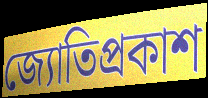
জ্যোতিপ্রকাশ